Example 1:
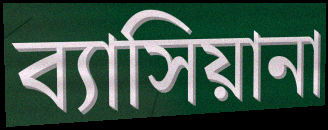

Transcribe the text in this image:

ব্যাসিয়ানা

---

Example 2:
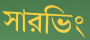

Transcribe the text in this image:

সারভিং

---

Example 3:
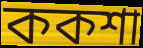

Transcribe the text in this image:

ককশা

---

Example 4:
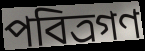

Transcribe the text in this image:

পবিত্রগণ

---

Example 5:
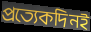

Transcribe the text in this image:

প্রত্যেকদিনই